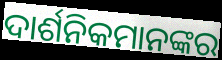
ଦାର୍ଶନିକମାନଙ୍କର